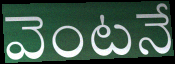
వెంటనే